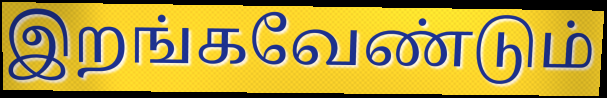
இறங்கவேண்டும்